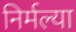
निर्मल्या